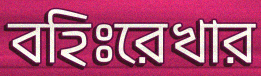
বহিঃরেখার